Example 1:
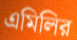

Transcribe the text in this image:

এমিলির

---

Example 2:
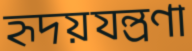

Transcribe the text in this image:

হৃদয়যন্ত্রণা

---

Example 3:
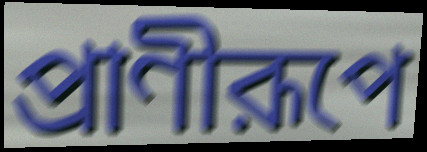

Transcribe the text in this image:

প্রাণীরূপে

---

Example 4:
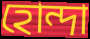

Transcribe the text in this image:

হোন্দা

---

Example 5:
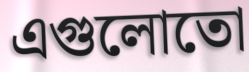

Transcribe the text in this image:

এগুলোতো